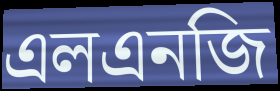
এলএনজি